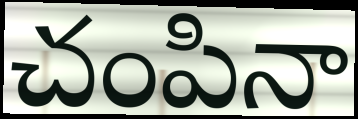
చంపినా